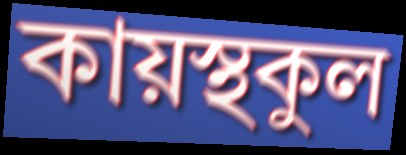
কায়স্থকুল